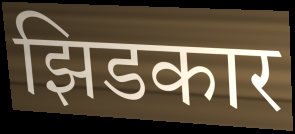
झिडकार